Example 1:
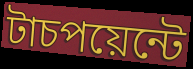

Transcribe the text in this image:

টাচপয়েন্টে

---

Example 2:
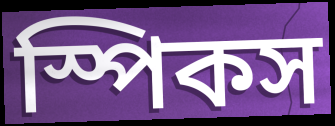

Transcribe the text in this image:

স্পিকস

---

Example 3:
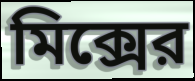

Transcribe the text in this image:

মিক্সের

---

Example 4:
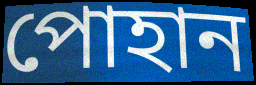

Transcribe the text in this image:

পোহান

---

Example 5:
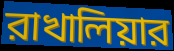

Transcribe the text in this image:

রাখালিয়ার